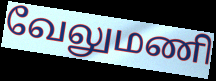
வேலுமணி